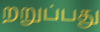
றறுப்பது